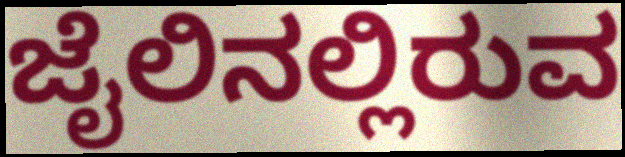
ಜೈಲಿನಲ್ಲಿರುವ